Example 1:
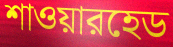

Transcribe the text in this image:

শাওয়ারহেড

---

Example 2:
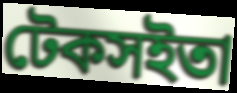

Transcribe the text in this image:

টেকসইতা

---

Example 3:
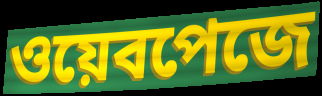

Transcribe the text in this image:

ওয়েবপেজে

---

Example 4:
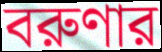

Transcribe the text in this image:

বরুণার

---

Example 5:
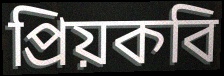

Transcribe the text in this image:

প্রিয়কবি